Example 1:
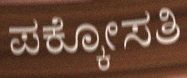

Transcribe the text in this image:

ಪಕ್ಕೋಸತಿ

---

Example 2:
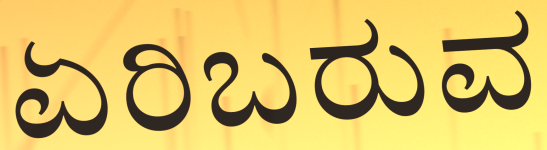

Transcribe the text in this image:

ಏರಿಬರುವ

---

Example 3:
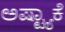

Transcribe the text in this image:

ಅಷ್ಟ್ಯಾಕೆ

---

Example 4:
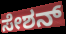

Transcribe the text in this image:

ಸೇಶನ್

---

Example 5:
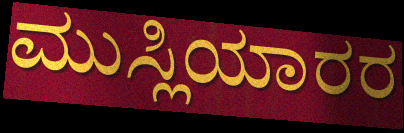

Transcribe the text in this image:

ಮುಸ್ಲಿಯಾರರ